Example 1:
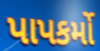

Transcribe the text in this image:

પાપકર્મો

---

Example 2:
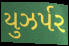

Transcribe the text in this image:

યુઝર્પર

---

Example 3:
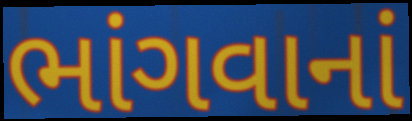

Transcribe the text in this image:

ભાંગવાનાં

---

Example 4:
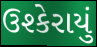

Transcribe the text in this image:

ઉશ્કેરાયું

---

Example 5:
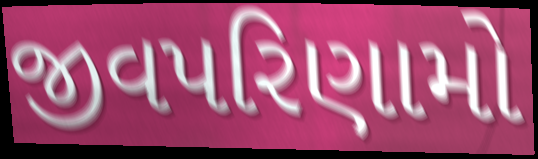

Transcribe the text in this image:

જીવપરિણામો